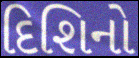
દિશિનો